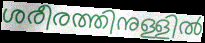
ശരീരത്തിനുള്ളിൽ